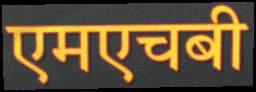
एमएचबी